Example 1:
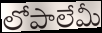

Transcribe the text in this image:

లోపాలేమీ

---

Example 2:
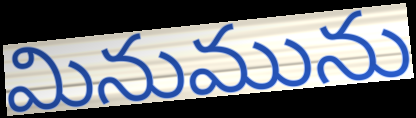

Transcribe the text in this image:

మినుమును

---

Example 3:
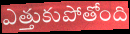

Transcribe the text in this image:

ఎత్తుకుపోతోంది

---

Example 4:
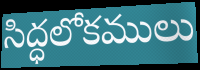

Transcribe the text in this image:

సిద్ధలోకములు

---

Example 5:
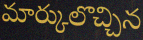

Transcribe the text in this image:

మార్కులొచ్చిన